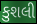
કુશલી